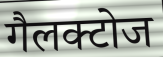
गैलक्टोज